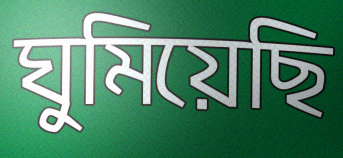
ঘুমিয়েছি